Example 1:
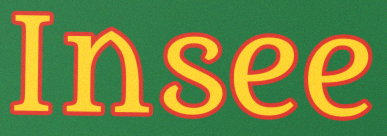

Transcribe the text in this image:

Insee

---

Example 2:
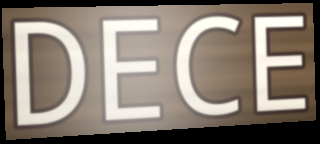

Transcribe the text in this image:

DECE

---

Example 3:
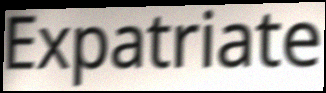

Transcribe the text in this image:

Expatriate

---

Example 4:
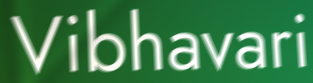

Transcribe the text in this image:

Vibhavari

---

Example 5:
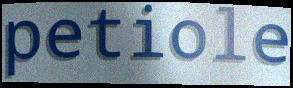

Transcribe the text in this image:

petiole